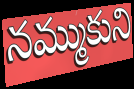
నమ్ముకుని